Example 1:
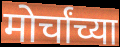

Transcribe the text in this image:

मोर्चांच्या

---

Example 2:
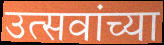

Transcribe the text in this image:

उत्सवांच्या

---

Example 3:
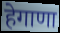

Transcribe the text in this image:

हेगाणा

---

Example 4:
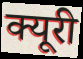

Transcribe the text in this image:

क्यूरी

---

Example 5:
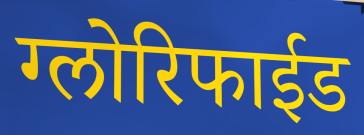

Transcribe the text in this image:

ग्लोरिफाईड